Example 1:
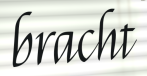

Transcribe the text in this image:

bracht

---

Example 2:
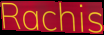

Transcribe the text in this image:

Rachis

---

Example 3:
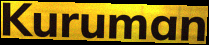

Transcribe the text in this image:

Kuruman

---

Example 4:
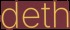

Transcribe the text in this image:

deth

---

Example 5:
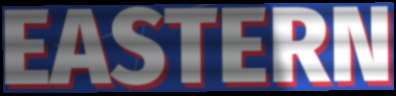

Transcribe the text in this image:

EASTERN